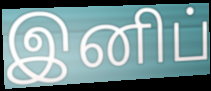
இனிப்